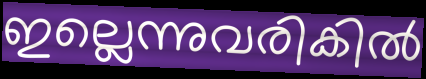
ഇല്ലെന്നുവരികിൽ